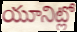
యూనిట్లో